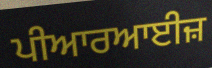
ਪੀਆਰਆਈਜ਼